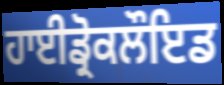
ਹਾਈਡ੍ਰੋਕਲੌਇਡ